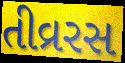
તીવ્રરસ